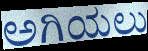
ಅಗಿಯಲು